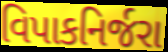
વિપાકનિર્જરા